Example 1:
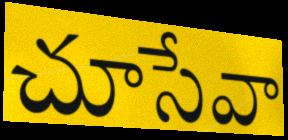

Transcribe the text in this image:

చూసేవా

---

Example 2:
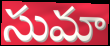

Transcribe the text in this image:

సుమా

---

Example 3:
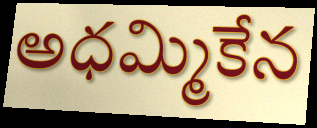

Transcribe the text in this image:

అధమ్మికేన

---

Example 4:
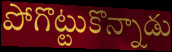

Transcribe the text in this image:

పోగొట్టుకొన్నాడు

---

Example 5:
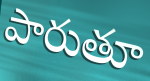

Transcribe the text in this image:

పారుతూ